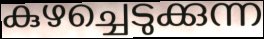
കുഴച്ചെടുക്കുന്ന